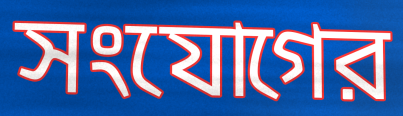
সংযোগের